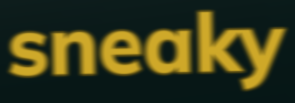
sneaky